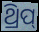
ଥ୍ରିପ୍